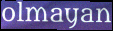
olmayan